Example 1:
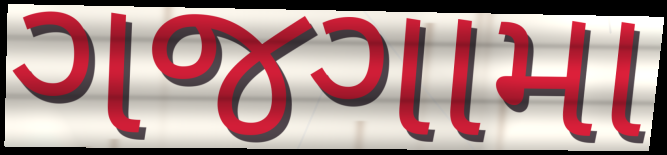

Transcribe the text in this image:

ગજગામા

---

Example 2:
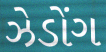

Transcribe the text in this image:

ઝેડોંગ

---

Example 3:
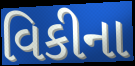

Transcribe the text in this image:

વિકીના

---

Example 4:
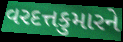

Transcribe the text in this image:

વરદત્તકુમારને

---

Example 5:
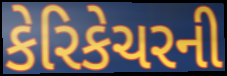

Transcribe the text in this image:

કેરિકેચરની